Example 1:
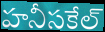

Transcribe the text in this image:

హనీసకేల్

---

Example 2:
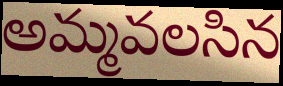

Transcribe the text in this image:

అమ్మవలసిన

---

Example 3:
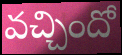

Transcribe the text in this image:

వచ్చిందో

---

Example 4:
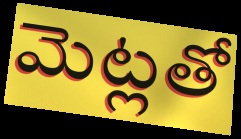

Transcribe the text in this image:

మెట్లతో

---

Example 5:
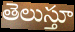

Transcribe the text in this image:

తెలుస్తూ